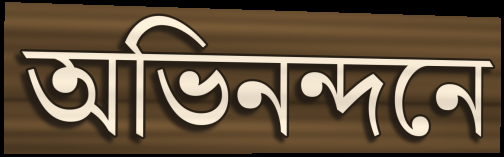
অভিনন্দনে